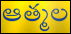
ఆత్మల